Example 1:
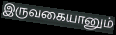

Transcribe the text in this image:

இருவகையானும்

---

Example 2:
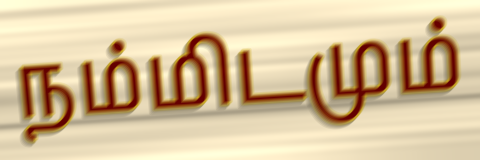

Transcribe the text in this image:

நம்மிடமும்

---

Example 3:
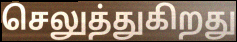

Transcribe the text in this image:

செலுத்துகிறது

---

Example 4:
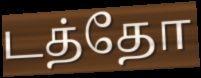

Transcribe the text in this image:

டத்தோ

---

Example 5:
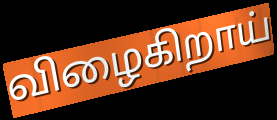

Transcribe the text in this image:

விழைகிறாய்